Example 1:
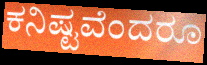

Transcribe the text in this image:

ಕನಿಷ್ಟವೆಂದರೂ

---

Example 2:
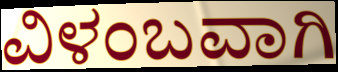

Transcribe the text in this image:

ವಿಳಂಬವಾಗಿ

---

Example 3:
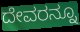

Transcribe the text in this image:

ದೇವರನ್ನೂ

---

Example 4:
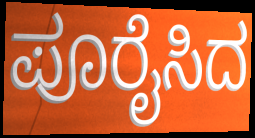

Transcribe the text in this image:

ಪೂರೈಸಿದ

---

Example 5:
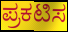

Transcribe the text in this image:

ಪ್ರಕಟಿಸ